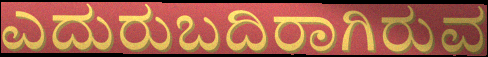
ಎದುರುಬದಿರಾಗಿರುವ